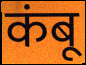
कंबू